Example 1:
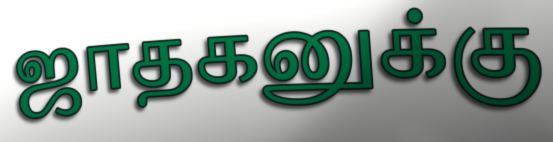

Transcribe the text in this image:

ஜாதகனுக்கு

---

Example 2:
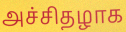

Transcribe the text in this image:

அச்சிதழாக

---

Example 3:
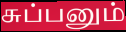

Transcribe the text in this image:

சுப்பனும்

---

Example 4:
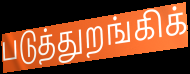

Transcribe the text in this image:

படுத்துறங்கிக்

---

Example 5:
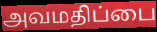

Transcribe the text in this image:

அவமதிப்பை